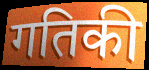
गतिकी